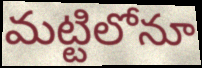
మట్టిలోనూ